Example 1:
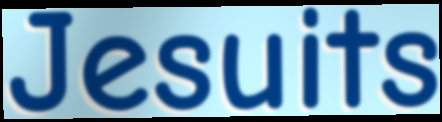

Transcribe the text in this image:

Jesuits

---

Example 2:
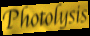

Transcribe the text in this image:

Photolysis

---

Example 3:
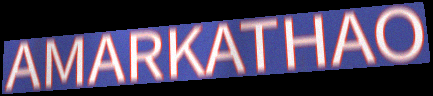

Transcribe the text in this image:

AMARKATHAO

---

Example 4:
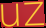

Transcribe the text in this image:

uz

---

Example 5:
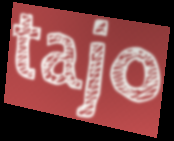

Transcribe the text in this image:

tajo